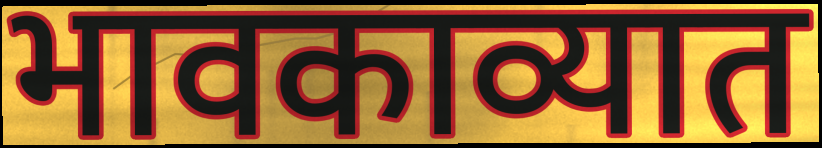
भावकाव्यात